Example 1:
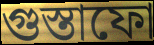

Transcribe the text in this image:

গুস্তাফো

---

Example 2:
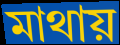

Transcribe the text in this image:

মাথায়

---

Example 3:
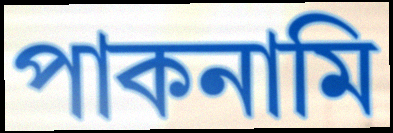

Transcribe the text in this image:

পাকনামি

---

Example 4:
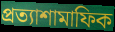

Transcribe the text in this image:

প্রত্যাশামাফিক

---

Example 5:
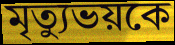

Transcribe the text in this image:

মৃত্যুভয়কে